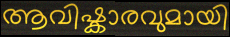
ആവിഷ്കാരവുമായി